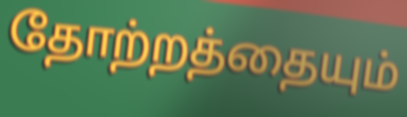
தோற்றத்தையும்